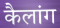
कैलांग